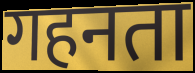
गहनता